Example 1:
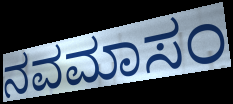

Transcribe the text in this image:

ನವಮಾಸಂ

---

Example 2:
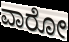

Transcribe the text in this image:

ವಾರೋ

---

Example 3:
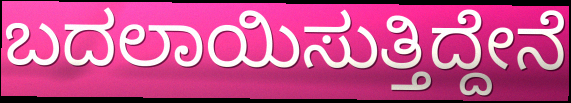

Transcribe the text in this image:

ಬದಲಾಯಿಸುತ್ತಿದ್ದೇನೆ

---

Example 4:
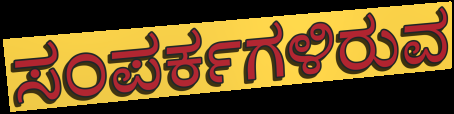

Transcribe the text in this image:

ಸಂಪರ್ಕಗಳಿರುವ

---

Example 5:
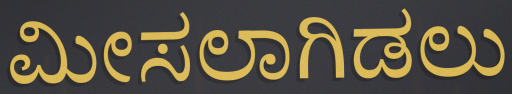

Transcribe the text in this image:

ಮೀಸಲಾಗಿಡಲು